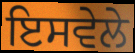
ਇਸਵੇਲੇ